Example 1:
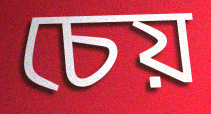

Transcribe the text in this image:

চেয়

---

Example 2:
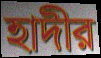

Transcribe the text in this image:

হাদীর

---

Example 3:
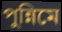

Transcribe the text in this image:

পুন্নিমে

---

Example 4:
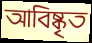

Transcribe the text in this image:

আবিষ্কৃত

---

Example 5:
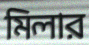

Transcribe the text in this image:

মিলার